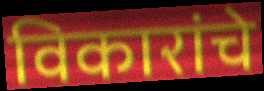
विकारांचे